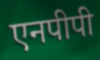
एनपीपी